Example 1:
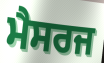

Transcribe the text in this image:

ਮੈਸਰਜ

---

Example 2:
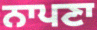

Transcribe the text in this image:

ਨਾਪਣਾ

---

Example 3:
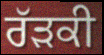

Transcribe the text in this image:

ਰੱੜਕੀ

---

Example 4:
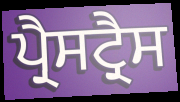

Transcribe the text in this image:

ਪ੍ਰੈਸਟ੍ਰੈਸ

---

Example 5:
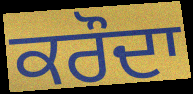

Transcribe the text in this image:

ਕਰੌਦਾ